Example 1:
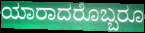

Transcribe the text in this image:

ಯಾರಾದರೊಬ್ಬರೂ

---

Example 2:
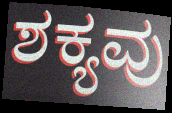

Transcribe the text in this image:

ಶಕ್ಯವು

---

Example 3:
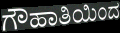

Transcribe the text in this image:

ಗೌಹಾತಿಯಿಂದ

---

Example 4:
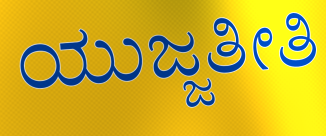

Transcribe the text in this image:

ಯುಜ್ಜತೀತಿ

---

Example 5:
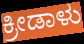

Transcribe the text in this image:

ಕ್ರೀಡಾಳು